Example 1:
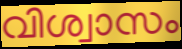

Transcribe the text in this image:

വിശ്വാസം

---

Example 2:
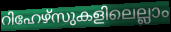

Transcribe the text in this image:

റിഹേഴ്സുകളിലെല്ലാം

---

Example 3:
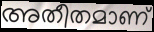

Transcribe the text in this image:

അതീതമാണ്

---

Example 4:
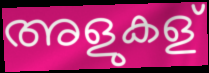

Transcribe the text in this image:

അളുകള്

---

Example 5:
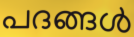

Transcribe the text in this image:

പദങ്ങൾ